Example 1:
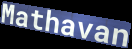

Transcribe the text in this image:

Mathavan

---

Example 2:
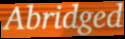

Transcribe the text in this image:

Abridged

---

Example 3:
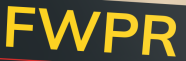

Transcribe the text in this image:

FWPR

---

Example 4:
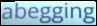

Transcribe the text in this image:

abegging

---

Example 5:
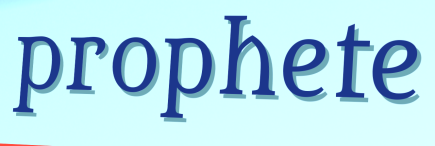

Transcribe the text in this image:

prophete